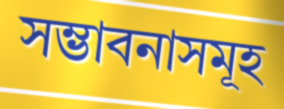
সম্ভাবনাসমূহ